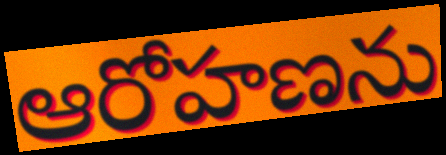
ఆరోహణను